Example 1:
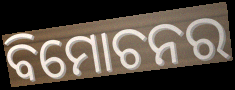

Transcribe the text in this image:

ବିମୋଚନର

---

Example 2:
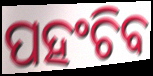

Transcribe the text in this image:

ପହଂଚିବ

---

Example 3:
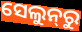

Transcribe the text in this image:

ସେଲୁନ୍‌ରୁ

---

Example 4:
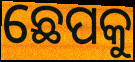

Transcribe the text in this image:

ଛେପକୁ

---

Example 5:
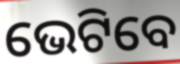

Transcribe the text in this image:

ଭେଟିବେ